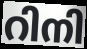
റിനി